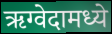
ऋग्वेदामध्ये